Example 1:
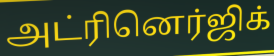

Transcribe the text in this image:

அட்ரினெர்ஜிக்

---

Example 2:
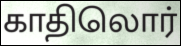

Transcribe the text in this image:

காதிலொர்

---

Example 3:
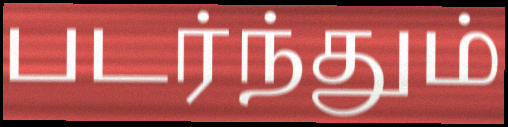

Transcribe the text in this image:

படர்ந்தும்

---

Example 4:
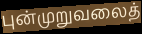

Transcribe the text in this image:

புன்முறுவலைத்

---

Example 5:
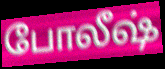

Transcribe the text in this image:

போலீஷ்